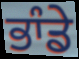
ਭਾੰਡੇ